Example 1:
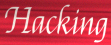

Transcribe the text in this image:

Hacking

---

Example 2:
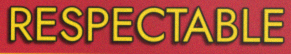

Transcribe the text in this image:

RESPECTABLE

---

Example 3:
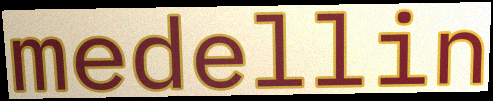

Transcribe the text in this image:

medellin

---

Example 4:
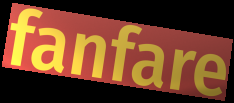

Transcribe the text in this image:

fanfare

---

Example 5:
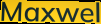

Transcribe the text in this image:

Maxwel